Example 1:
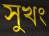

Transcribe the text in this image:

সুখং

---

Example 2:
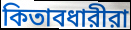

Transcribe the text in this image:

কিতাবধারীরা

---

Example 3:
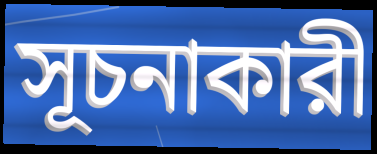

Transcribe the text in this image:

সূচনাকারী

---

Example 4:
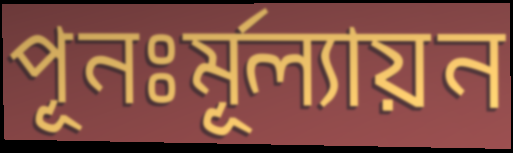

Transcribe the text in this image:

পূনঃর্মূল্যায়ন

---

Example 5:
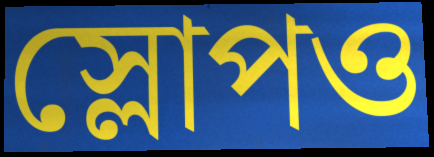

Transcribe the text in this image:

স্লোপও